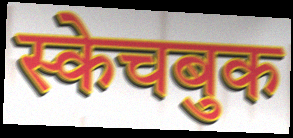
स्केचबुक